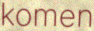
komen